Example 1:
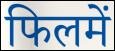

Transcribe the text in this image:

फिलमें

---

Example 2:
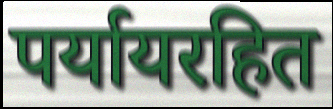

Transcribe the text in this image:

पर्यायरहित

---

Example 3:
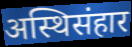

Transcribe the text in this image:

अस्थिसंहार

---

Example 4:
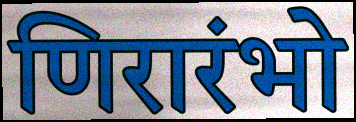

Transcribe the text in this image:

णिरारंभो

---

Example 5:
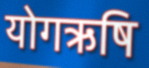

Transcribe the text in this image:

योगऋषि